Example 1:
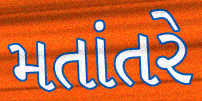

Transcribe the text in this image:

મતાંતરે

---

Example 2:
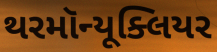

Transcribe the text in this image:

થરમૉન્યૂક્લિયર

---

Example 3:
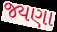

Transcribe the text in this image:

જ્યણા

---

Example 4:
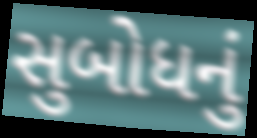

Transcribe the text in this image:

સુબોધનું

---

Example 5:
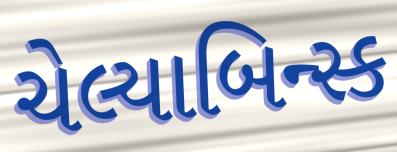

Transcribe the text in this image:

ચેલ્યાબિન્સ્ક